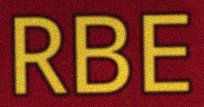
RBE